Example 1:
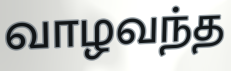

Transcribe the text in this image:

வாழவந்த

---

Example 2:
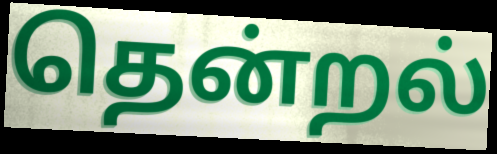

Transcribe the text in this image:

தென்றல்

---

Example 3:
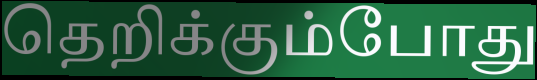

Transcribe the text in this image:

தெறிக்கும்போது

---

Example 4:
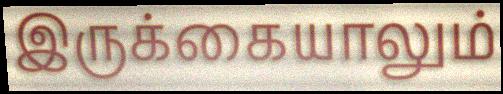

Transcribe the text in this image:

இருக்கையாலும்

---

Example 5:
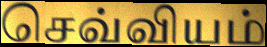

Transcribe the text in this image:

செவ்வியம்